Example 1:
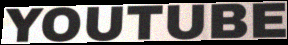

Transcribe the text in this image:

YOUTUBE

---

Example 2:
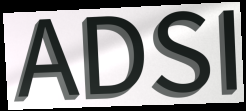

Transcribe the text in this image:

ADSI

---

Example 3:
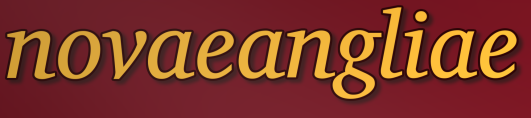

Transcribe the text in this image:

novaeangliae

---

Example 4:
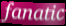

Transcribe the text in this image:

fanatic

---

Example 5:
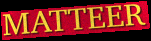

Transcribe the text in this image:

MATTEER